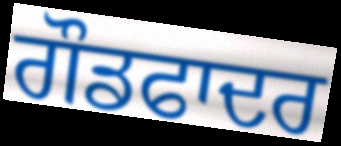
ਗੌਡਫਾਦਰ